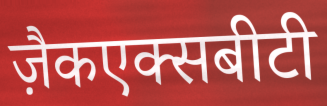
ज़ैकएक्सबीटी